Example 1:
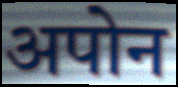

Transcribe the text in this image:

अपोन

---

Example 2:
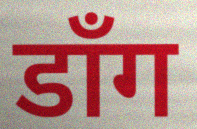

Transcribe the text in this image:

डाँग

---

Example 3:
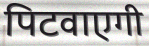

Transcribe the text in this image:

पिटवाएगी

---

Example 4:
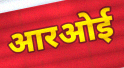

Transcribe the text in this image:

आरओई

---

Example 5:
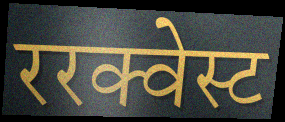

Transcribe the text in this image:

ररक्वेस्ट